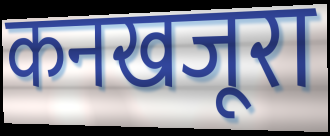
कनखजूरा